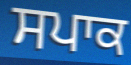
ਸਪਾਕ